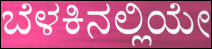
ಬೆಳಕಿನಲ್ಲಿಯೇ